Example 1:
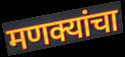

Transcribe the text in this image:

मणक्यांचा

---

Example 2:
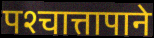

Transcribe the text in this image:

पश्चात्तापाने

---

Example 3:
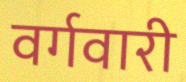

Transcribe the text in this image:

वर्गवारी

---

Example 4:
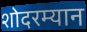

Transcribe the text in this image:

शोदरम्यान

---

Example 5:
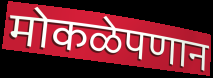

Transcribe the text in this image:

मोकळेपणान